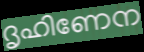
ദൃഹിണേന